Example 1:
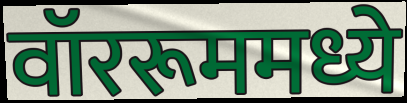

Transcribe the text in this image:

वॉररूममध्ये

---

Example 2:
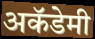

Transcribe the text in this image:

अकॅडेमी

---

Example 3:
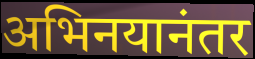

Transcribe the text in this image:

अभिनयानंतर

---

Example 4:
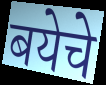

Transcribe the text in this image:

बयेचे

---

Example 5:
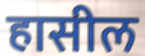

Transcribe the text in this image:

हासील